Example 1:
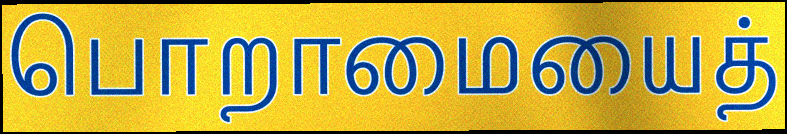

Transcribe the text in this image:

பொறாமையைத்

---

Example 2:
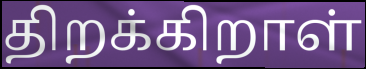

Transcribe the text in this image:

திறக்கிறாள்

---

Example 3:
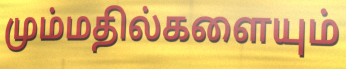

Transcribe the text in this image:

மும்மதில்களையும்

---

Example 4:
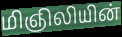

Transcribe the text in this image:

மிஞிலியின்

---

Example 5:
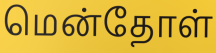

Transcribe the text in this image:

மென்தோள்